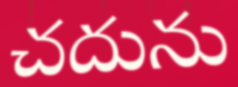
చదును